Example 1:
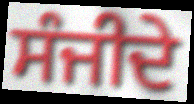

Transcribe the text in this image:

ਸੰਜੀਦੇ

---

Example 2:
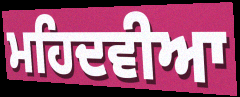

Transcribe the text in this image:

ਮਹਿਦਵੀਆ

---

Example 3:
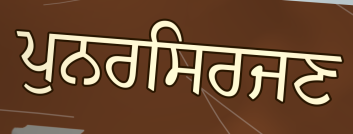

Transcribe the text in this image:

ਪੁਨਰਸਿਰਜਣ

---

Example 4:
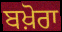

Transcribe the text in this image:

ਬਖ਼ੋਰਾ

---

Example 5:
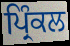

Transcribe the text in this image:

ਪ੍ਰਿੰਕਲ